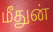
மீதுன்